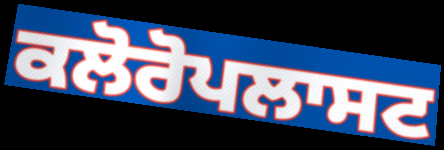
ਕਲੋਰੋਪਲਾਸਟ